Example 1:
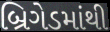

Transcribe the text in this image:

બ્રિગેડમાંથી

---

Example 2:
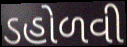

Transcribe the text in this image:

ડહોળવી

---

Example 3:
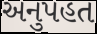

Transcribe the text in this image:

અનુપહત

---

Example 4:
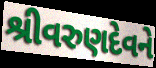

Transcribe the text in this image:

શ્રીવરુણદેવને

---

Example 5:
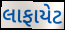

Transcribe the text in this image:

લાફાયેટ